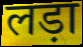
लड़ा